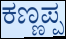
ಕಣ್ಣಪ್ಪ